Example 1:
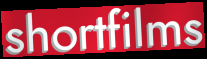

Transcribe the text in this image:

shortfilms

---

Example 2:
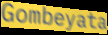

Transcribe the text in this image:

Gombeyata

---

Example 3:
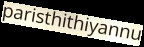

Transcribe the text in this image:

paristhithiyannu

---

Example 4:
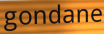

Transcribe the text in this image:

gondane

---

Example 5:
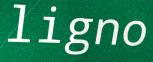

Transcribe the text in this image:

ligno